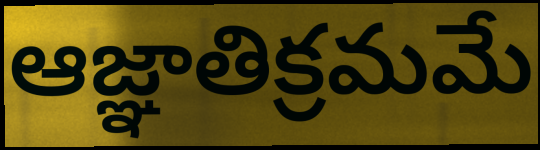
ఆజ్ఞాతిక్రమమే